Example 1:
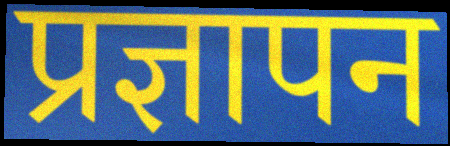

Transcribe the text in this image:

प्रज्ञापन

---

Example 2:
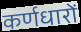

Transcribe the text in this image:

कर्णधारों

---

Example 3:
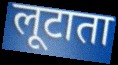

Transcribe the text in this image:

लूटाता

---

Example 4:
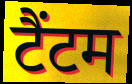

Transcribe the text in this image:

टैंटम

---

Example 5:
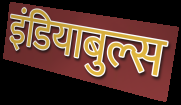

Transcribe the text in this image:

इंडियाबुल्‍स